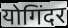
योगिंदर